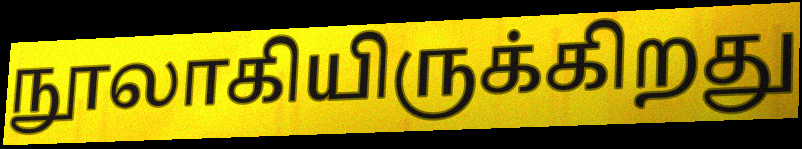
நூலாகியிருக்கிறது